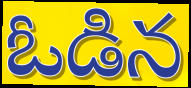
ఓడిన